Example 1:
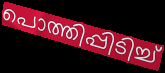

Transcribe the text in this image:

പൊത്തിപ്പിടിച്ച്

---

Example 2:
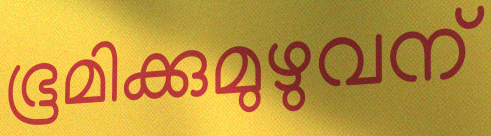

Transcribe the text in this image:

ഭൂമിക്കുമുഴുവന്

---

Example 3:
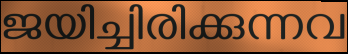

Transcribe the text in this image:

ജയിച്ചിരിക്കുന്നവ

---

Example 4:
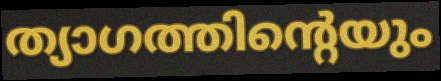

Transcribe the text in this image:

ത്യാഗത്തിന്റെയും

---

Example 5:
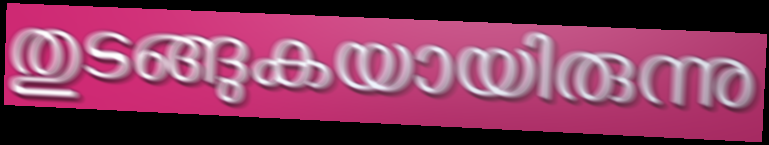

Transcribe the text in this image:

തുടങ്ങുകയായിരുന്നു